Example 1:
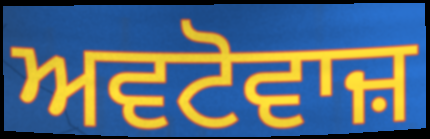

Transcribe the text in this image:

ਅਵਟੋਵਾਜ਼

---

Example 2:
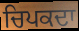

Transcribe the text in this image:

ਚਿਪਕਦਾ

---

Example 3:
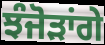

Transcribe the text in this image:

ਝੰਜੋੜਾਂਗੇ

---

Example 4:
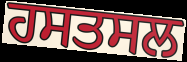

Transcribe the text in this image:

ਹਸਤਸਲ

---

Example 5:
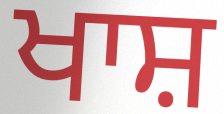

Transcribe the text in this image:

ਖਾਸ਼